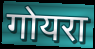
गोयरा